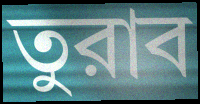
তুরাব